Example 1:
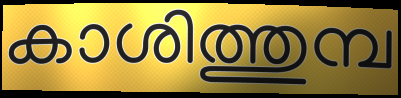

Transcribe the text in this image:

കാശിത്തുമ്പ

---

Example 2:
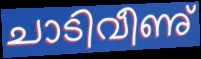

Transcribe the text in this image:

ചാടിവീണു്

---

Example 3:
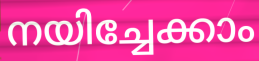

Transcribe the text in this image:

നയിച്ചേക്കാം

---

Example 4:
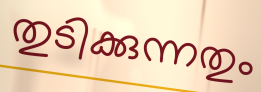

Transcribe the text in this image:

തുടിക്കുന്നതും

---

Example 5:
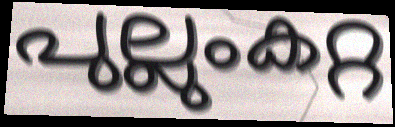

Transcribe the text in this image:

പുല്ലുംകറ്റ